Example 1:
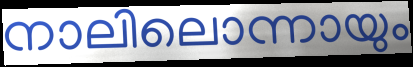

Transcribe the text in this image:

നാലിലൊന്നായും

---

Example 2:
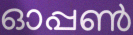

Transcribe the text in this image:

ഓപ്പൺ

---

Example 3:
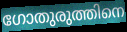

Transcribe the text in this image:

ഗോതുരുത്തിനെ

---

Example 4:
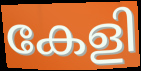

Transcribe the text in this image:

കേളി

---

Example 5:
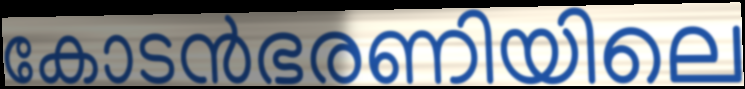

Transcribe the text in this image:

കോടൻഭരണിയിലെ